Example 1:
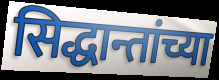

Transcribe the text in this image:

सिद्धान्तांच्या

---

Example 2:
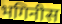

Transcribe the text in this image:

भगिनीस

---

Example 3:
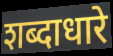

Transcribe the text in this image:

शब्दाधारे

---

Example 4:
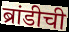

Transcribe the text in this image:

ब्रांडीची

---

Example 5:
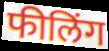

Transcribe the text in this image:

फीलिंग